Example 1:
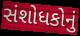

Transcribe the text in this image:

સંશોધકોનું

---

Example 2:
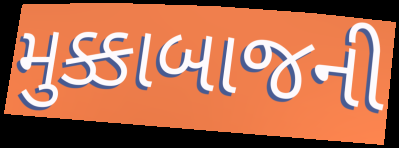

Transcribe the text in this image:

મુક્કાબાજની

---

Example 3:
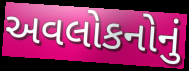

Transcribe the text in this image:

અવલોકનોનું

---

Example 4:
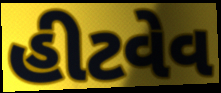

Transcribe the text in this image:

હીટવેવ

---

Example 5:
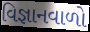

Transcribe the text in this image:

વિજ્ઞાનવાળો